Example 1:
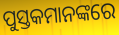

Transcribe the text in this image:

ପୁସ୍ତକମାନଙ୍କରେ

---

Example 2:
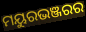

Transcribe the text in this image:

ମୟୁରଭଞ୍ଜରର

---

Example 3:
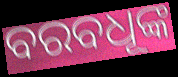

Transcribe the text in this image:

ବରବଧୂଙ୍କ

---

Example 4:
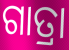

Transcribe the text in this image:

ଗାତ୍ରା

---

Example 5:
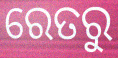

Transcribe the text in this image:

ରେତରୁ